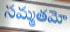
సమ్మతమో